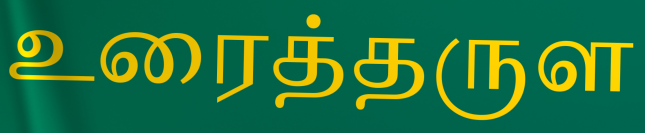
உரைத்தருள